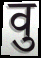
वु